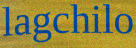
lagchilo